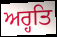
ਅਰ੍ਹਤਿ